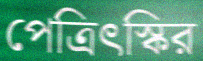
পেত্রিৎস্কির